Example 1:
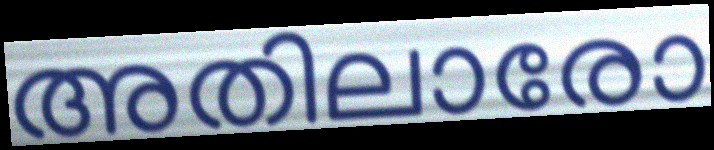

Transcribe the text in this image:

അതിലാരോ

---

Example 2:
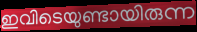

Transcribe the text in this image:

ഇവിടെയുണ്ടായിരുന്ന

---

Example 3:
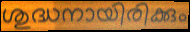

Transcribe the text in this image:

ശുദ്ധനായിരിക്കും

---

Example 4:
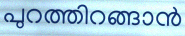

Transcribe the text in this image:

പുറത്തിറങ്ങാൻ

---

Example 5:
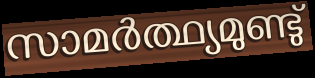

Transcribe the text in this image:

സാമർത്ഥ്യമുണ്ടു്